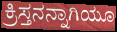
ಕ್ರಿಸ್ತನನ್ನಾಗಿಯೂ